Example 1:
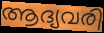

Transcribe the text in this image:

ആദ്യവരി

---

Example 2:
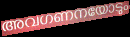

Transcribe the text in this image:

അവഗണനയോടും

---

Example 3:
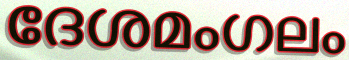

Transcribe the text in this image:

ദേശമംഗലം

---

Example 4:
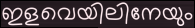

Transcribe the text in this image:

ഇളവെയിലിനേയും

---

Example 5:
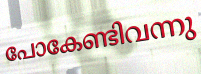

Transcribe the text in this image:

പോകേണ്ടിവന്നു